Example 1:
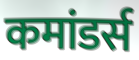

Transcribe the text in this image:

कमांडर्स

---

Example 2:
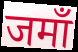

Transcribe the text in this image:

जमाँ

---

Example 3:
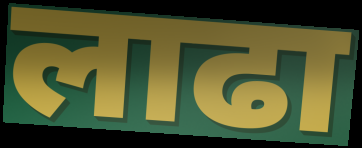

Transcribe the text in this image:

लाढा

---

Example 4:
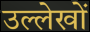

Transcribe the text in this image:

उल्लेखों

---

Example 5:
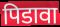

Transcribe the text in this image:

पिडावा